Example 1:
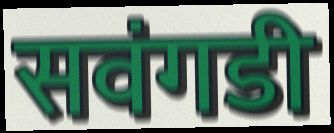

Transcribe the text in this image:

सवंगडी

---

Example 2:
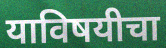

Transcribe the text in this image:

याविषयीचा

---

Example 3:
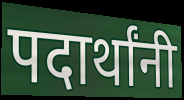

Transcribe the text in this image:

पदार्थांनी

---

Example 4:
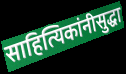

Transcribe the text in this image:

साहित्यिकांनीसुद्धा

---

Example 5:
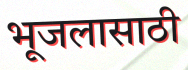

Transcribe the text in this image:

भूजलासाठी